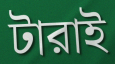
টারাই